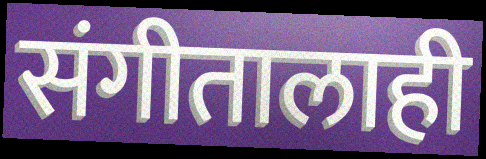
संगीतालाही